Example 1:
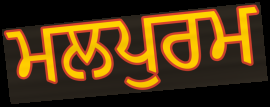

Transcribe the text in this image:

ਮਲਪੁਰਮ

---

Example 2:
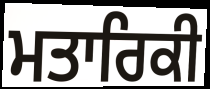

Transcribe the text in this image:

ਮਤਾਰਿਕੀ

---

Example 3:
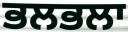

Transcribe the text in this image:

ਭਲਭਲਾ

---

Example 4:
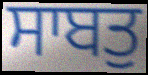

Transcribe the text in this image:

ਸਾਬਤੁ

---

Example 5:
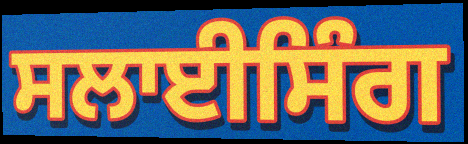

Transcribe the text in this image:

ਸਲਾਈਸਿੰਗ